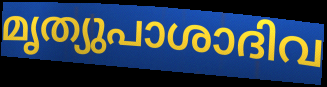
മൃത്യുപാശാദിവ